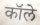
कॉले